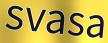
svasa